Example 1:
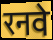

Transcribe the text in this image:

रनवे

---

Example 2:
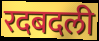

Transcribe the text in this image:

रदबदली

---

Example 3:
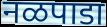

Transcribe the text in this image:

नळपाडा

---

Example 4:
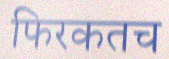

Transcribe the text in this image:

फिरकतच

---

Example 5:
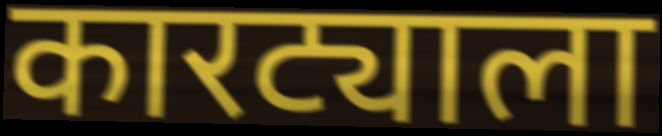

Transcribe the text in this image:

कारट्याला